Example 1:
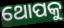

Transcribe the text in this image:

ଥୋପକୁ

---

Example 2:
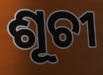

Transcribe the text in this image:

ଶୂଚୀ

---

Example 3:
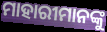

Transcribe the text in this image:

ମାହାରୀମାନଙ୍କୁ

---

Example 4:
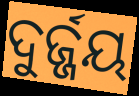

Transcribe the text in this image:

ଦୁର୍ଜ୍ଜୟ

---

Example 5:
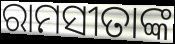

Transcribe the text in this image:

ରାମସୀତାଙ୍କ